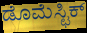
ಡೊಮೆಸ್ಟಿಕ್